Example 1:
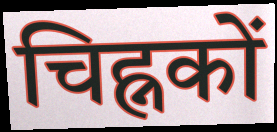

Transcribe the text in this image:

चिह्नकों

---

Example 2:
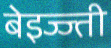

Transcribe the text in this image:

बेइज्ज्ती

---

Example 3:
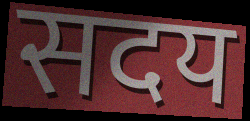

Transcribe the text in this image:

सदय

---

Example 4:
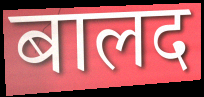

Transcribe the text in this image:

बालद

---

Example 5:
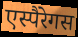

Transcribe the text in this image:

एस्पैरेगस